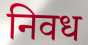
निवध